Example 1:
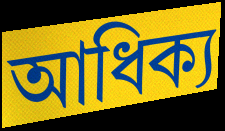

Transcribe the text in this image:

আধিক্য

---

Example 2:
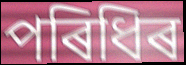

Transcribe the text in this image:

পৰিধিৰ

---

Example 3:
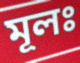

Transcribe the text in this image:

মূলঃ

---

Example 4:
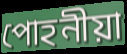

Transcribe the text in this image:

পোহনীয়া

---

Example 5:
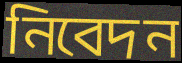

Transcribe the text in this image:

নিবেদন